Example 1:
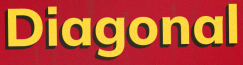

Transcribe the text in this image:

Diagonal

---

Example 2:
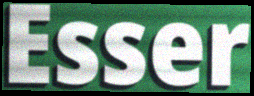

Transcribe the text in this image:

Esser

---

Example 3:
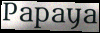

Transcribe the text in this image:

Papaya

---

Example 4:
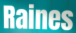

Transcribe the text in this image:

Raines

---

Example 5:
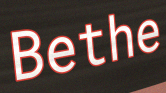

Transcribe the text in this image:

Bethe